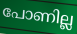
പോണില്ല